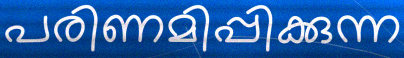
പരിണമിപ്പിക്കുന്ന